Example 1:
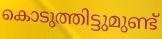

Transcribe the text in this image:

കൊടുത്തിട്ടുമുണ്ട്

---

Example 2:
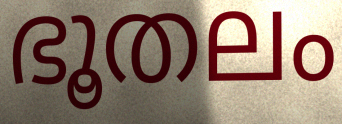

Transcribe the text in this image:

ഭൂതലം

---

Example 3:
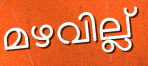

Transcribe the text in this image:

മഴവില്ല്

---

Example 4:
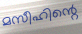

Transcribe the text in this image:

മസീഹിന്റെ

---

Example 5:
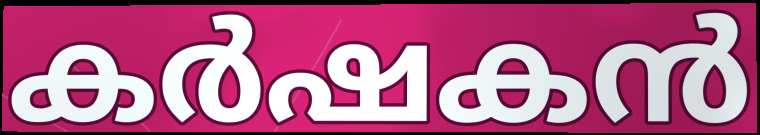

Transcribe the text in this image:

കർഷകൻ